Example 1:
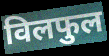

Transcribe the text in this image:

विलफुल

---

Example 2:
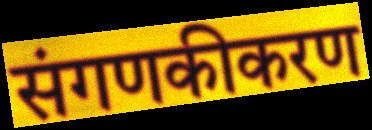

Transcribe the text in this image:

संगणकीकरण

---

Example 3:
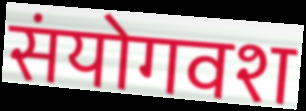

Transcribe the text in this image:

संयोगवश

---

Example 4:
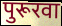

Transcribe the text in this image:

पुरूरवा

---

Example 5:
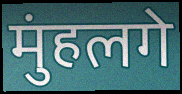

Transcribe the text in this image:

मुंहलगे